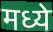
मध्ये